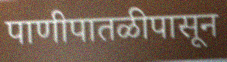
पाणीपातळीपासून